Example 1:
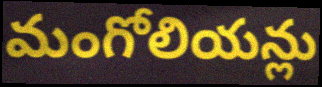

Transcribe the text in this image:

మంగోలియన్లు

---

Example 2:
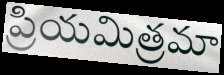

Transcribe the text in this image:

ప్రియమిత్రమా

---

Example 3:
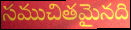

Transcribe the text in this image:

సముచితమైనది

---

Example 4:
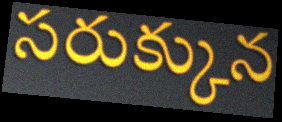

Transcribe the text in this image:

సరుక్కున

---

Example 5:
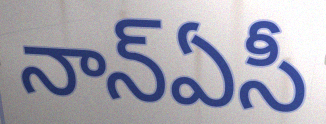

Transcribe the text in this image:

నాన్ఏసీ